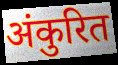
अंकुरित